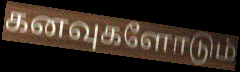
கனவுகளோடும்